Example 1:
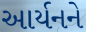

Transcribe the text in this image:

આર્યનને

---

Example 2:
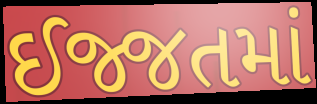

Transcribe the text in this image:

ઈજ્જતમાં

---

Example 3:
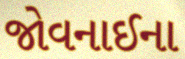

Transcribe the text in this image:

જોવનાઈના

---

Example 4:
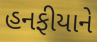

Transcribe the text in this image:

હનફીયાને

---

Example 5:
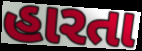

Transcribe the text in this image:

હારતા